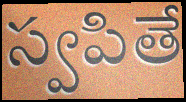
స్వపితే